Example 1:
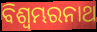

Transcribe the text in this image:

ବିଶ୍ୱମ୍ଭରନାଥ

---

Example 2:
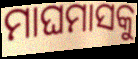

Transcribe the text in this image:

ମାଘମାସକୁ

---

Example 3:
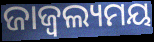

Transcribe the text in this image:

ଜାଜ୍ୱଲ୍ୟମୟ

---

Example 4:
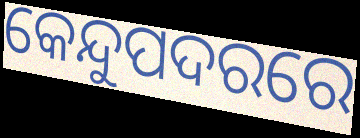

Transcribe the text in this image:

କେନ୍ଦୁପଦରରେ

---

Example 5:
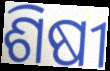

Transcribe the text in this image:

ଶିଷୀ